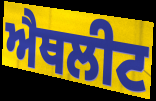
ਐਥਲੀਟ